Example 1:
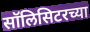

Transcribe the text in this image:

सॉलिसिटरच्या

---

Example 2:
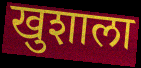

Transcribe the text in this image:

खुशाला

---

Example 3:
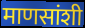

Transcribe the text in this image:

माणसांशी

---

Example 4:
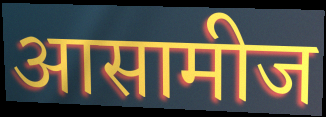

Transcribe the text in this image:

आसामीज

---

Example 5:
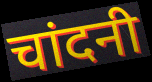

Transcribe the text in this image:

चांदनी